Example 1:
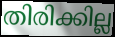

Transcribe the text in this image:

തിരിക്കില്ല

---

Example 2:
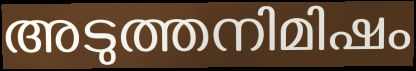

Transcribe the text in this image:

അടുത്തനിമിഷം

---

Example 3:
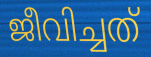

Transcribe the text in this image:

ജീവിച്ചത്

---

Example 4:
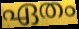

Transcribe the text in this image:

ഏതം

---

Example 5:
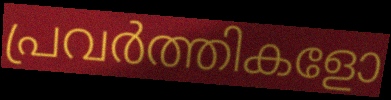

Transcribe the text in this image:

പ്രവർത്തികളോ